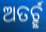
ଅତର୍ଚ୍ଛ